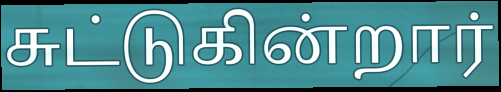
சுட்டுகின்றார்